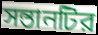
সন্তানটির